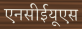
एनसीईयूएस